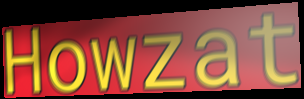
Howzat